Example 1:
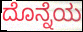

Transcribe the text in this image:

ದೊನ್ನೆಯ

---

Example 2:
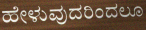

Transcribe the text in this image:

ಹೇಳುವುದರಿಂದಲೂ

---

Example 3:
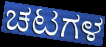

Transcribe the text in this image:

ಚಟಗಳ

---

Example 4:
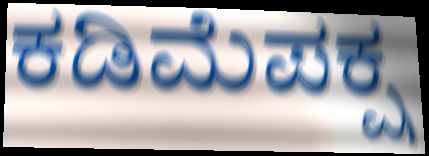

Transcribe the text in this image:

ಕಡಿಮೆಪಕ್ಷ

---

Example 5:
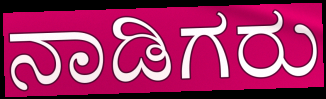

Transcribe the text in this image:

ನಾಡಿಗರು